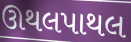
ઊથલપાથલ